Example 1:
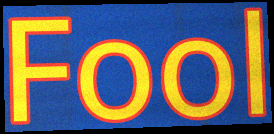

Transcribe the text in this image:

Fool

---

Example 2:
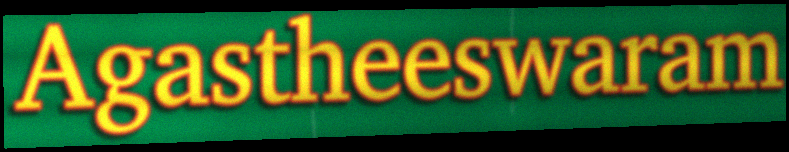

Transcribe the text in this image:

Agastheeswaram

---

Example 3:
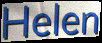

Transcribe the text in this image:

Helen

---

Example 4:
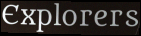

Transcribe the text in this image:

Explorers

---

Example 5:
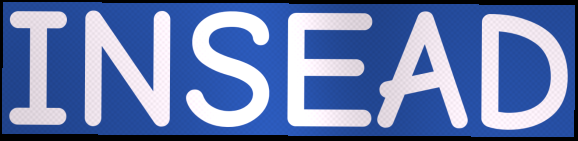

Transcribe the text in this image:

INSEAD